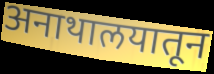
अनाथालयातून